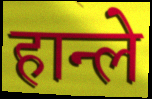
हान्ले